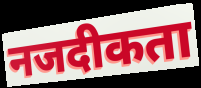
नजदीकता